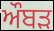
ਔਬੜ